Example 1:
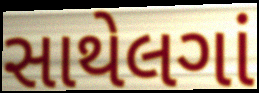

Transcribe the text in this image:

સાથેલગાં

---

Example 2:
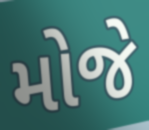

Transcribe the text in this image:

મોજે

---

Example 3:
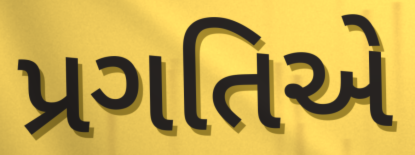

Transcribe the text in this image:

પ્રગતિએ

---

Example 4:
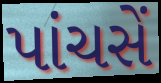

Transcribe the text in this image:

પાંચસેં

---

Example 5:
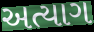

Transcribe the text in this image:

અત્યાગ